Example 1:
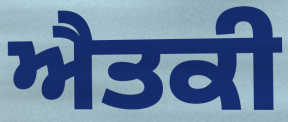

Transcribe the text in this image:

ਐਤਕੀ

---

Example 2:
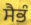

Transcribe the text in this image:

ਸੈਭੰ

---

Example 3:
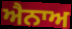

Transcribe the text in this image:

ਐਨਾਅ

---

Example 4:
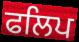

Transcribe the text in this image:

ਫਲਿਪ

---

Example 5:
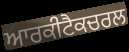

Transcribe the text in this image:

ਆਰਕੀਟੈਕਚਰਲ